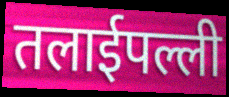
तलाईपल्ली